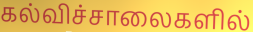
கல்விச்சாலைகளில்